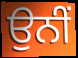
ਉਨੀਂ